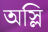
অস্লি